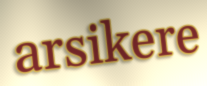
arsikere